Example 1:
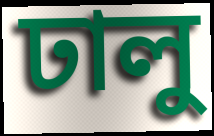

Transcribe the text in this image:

ঢালু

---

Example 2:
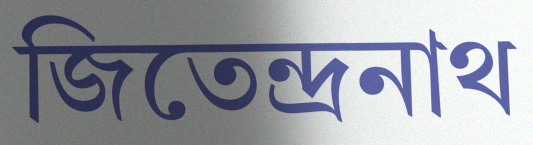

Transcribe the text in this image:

জিতেন্দ্রনাথ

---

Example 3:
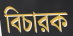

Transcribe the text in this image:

বিচারক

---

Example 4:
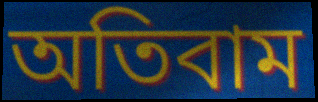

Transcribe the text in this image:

অতিবাম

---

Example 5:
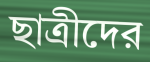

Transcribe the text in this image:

ছাত্রীদের